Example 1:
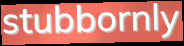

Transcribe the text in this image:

stubbornly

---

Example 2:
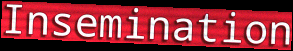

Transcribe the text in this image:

Insemination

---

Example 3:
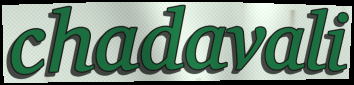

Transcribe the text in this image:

chadavali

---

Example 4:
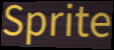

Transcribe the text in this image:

Sprite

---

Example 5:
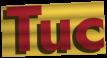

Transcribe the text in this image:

Tuc